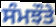
ਸੰਮਝੌਤੇ